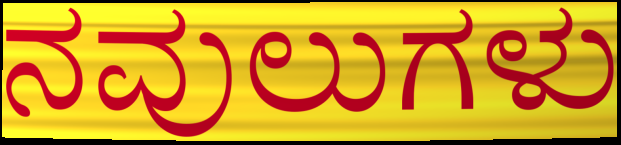
ನವುಲುಗಳು